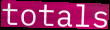
totals